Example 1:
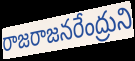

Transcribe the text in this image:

రాజరాజనరేంద్రుని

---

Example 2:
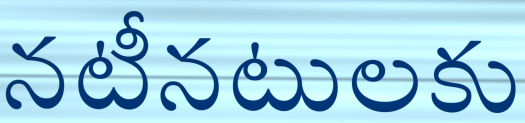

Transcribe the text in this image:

నటీనటులకు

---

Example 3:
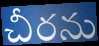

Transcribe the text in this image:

చీరను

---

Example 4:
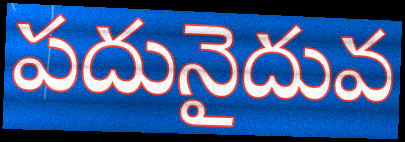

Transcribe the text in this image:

పదునైదువ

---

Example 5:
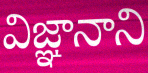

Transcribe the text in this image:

విజ్ఞానాని